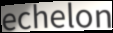
echelon